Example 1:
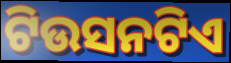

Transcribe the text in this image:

ଟିଉସନଟିଏ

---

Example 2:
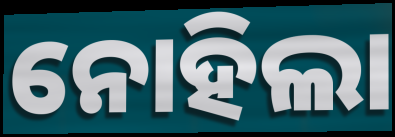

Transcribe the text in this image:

ନୋହିଲା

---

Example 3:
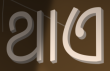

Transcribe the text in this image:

ଥାଏ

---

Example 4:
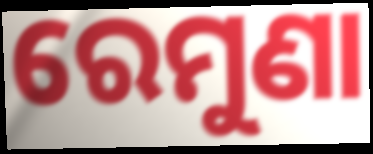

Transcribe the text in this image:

ରେମୁଣା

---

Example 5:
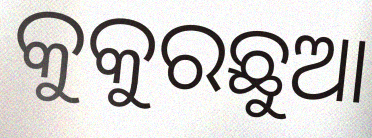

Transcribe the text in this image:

କୁକୁରଛୁଆ